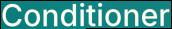
Conditioner